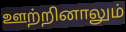
ஊற்றினாலும்